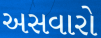
અસવારો